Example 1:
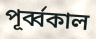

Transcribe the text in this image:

পূর্ব্বকাল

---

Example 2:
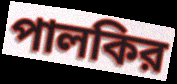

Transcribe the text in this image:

পালকির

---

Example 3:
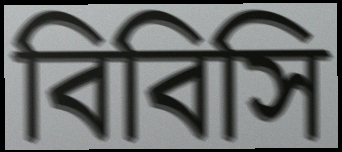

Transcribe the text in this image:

বিবিসি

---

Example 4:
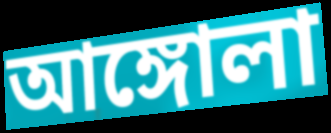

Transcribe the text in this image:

আঙ্গোলা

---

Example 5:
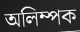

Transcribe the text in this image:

অলিম্পক